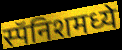
स्पॅनिशमध्ये